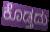
ಕೊಡ್ತದು